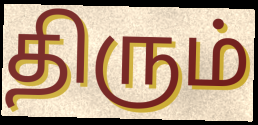
திரும்